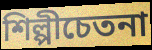
শিল্পীচেতনা